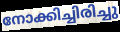
നോക്കിച്ചിരിച്ചു